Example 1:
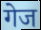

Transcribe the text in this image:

गेज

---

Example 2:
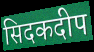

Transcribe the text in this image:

सिदकदीप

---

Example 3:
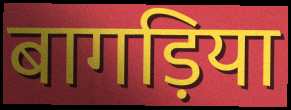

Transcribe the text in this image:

बागड़िया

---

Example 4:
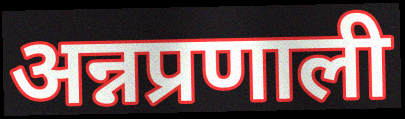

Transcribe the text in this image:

अन्नप्रणाली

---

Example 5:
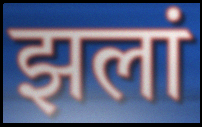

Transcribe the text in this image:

झलां